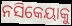
ନସିକେୟାକୁ